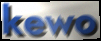
kewo